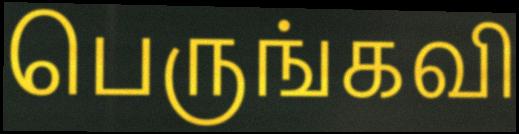
பெருங்கவி